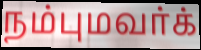
நம்புமவர்க்